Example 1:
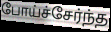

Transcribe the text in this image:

போய்ச்சேர்ந்த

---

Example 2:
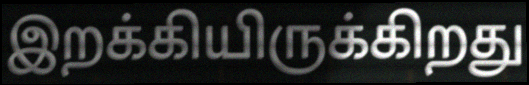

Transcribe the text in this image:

இறக்கியிருக்கிறது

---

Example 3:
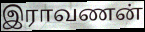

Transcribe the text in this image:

இராவணன்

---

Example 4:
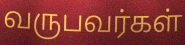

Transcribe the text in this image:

வருபவர்கள்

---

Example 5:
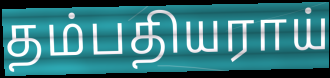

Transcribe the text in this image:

தம்பதியராய்